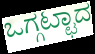
ಒಗ್ಗಟ್ಟಾದ